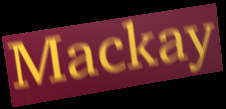
Mackay